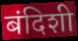
बंदिशी